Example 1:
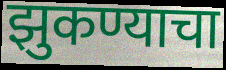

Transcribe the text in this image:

झुकण्याचा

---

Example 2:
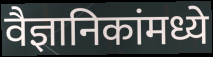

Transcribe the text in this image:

वैज्ञानिकांमध्ये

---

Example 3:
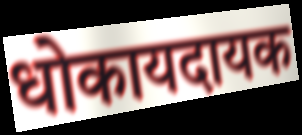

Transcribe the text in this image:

धोकायदायक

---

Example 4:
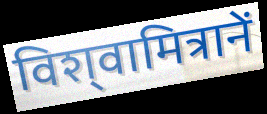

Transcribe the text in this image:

विश्वामित्रानें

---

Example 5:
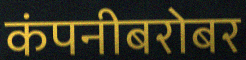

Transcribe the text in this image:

कंपनीबरोबर